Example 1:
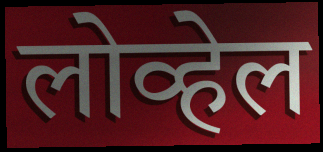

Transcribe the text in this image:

लोव्हेल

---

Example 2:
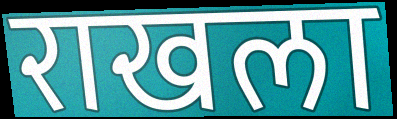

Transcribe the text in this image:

राखला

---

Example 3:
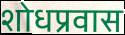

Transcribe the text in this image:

शोधप्रवास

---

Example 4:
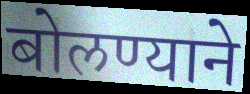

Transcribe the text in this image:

बोलण्याने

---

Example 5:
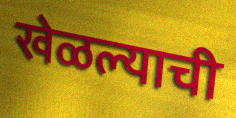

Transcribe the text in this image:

खेळल्याची